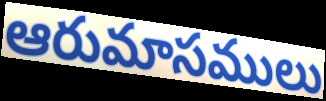
ఆరుమాసములు